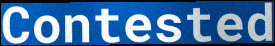
Contested